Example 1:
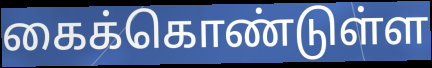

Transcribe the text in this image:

கைக்கொண்டுள்ள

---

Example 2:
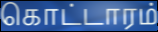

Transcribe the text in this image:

கொட்டாரம்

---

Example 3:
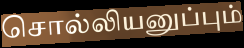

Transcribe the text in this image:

சொல்லியனுப்பும்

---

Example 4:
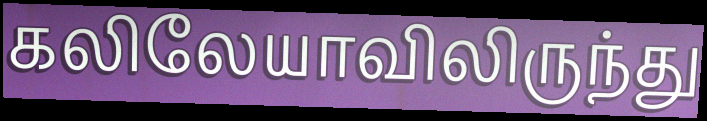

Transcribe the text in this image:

கலிலேயாவிலிருந்து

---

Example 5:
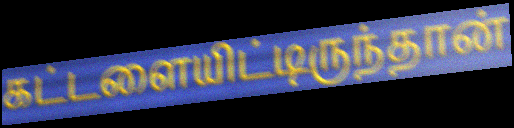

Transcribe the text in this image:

கட்டளையிட்டிருந்தான்